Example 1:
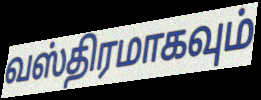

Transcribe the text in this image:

வஸ்திரமாகவும்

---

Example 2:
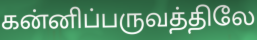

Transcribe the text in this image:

கன்னிப்பருவத்திலே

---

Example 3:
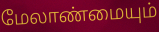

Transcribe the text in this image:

மேலாண்மையும்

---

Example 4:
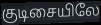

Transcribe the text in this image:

குடிசையிலே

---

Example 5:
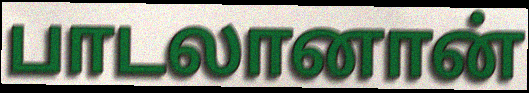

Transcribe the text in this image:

பாடலானான்